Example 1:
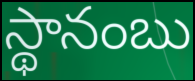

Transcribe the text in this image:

స్థానంబు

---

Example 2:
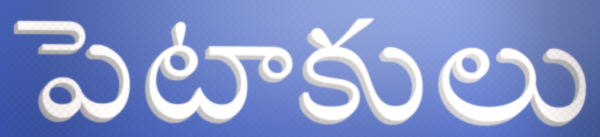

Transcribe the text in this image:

పెటాకులు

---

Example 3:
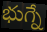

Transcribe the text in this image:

భుగ్నే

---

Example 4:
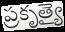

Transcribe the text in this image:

ప్రకృత్యై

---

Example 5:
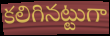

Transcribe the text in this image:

కలిగినట్టుగా